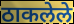
ठाकलेले